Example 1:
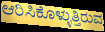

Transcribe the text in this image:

ಆರಿಸಿಕೊಳ್ಳುತ್ತಿರುವ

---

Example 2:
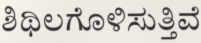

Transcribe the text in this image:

ಶಿಥಿಲಗೊಳಿಸುತ್ತಿವೆ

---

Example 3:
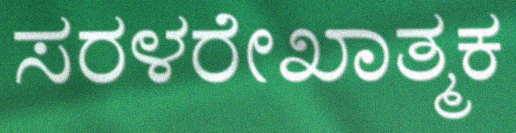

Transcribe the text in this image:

ಸರಳರೇಖಾತ್ಮಕ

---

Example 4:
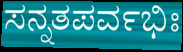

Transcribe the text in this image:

ಸನ್ನತಪರ್ವಭಿಃ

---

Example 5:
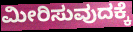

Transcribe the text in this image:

ಮೀರಿಸುವುದಕ್ಕೆ